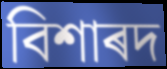
বিশাৰদ